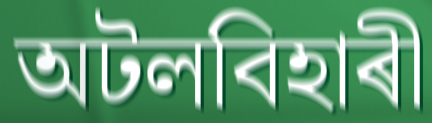
অটলবিহাৰী